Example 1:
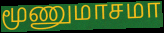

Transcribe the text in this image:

மூணுமாசமா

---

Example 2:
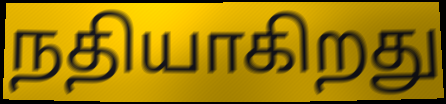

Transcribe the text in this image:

நதியாகிறது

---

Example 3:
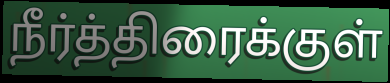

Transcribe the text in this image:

நீர்த்திரைக்குள்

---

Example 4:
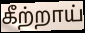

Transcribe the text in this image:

கீற்றாய்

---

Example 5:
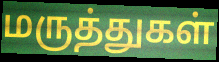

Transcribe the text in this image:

மருத்துகள்